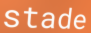
stade